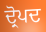
ਦ੍ਰੋਪਦ